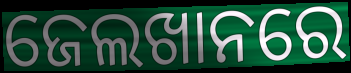
ଜେଲଖାନରେ